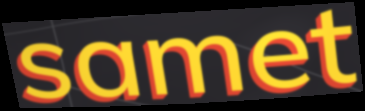
samet